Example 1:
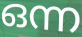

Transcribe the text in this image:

ഒന്ന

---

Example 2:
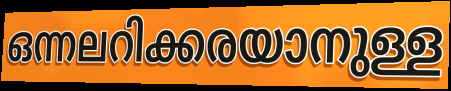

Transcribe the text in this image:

ഒന്നലറിക്കരയാനുള്ള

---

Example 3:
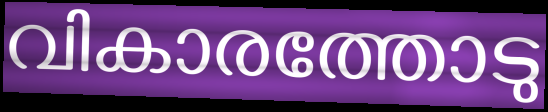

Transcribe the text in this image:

വികാരത്തോടു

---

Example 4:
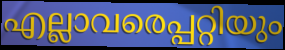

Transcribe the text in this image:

എല്ലാവരെപ്പറ്റിയും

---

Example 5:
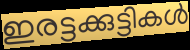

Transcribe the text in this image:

ഇരട്ടക്കുട്ടികൾ